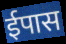
ईपास